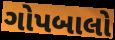
ગોપબાલો